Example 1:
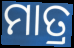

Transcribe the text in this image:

ମାତ୍ର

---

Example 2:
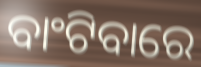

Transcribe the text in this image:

ବାଂଟିବାରେ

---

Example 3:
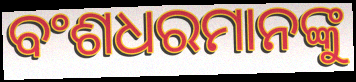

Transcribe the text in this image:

ବଂଶଧରମାନଙ୍କୁ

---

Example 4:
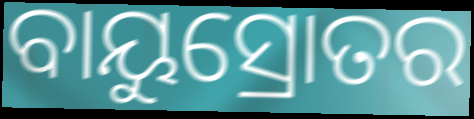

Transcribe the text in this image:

ବାୟୁସ୍ରୋତର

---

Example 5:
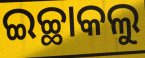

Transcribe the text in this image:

ଇଚ୍ଛାକଲୁ